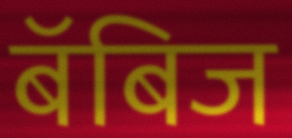
बॅबिज